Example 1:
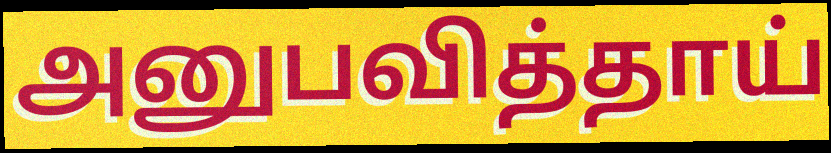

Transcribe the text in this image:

அனுபவித்தாய்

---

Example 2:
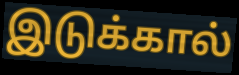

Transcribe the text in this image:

இடுக்கால்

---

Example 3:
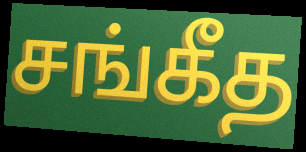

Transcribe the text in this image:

சங்கீத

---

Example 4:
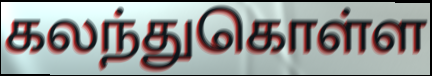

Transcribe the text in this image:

கலந்துகொள்ள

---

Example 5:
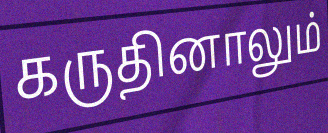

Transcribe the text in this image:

கருதினாலும்